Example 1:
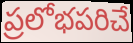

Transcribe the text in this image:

ప్రలోభపరిచే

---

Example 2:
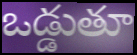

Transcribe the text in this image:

ఒడ్డుతూ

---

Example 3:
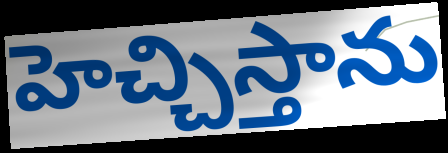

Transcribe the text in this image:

హెచ్చిస్తాను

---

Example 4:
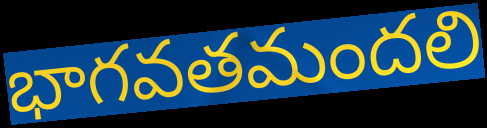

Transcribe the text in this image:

భాగవతమందలి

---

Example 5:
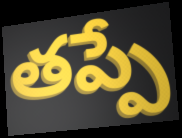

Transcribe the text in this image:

తప్పే